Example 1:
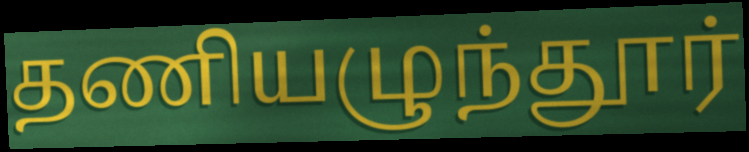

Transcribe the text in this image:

தணியழுந்தூர்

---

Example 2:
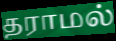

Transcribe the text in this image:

தராமல்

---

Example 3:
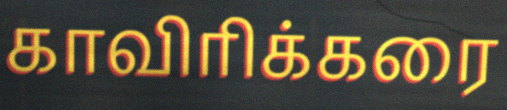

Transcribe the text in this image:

காவிரிக்கரை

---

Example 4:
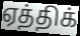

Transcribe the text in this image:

ஏத்திக்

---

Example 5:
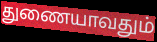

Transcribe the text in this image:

துணையாவதும்